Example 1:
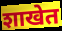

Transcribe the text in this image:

शाखेत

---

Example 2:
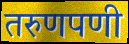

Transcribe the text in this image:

तरुणपणी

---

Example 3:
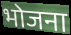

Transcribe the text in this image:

भोजना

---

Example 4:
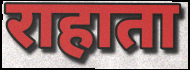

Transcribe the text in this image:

राहाता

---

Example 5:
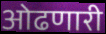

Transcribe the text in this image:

ओढणारी